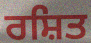
ਰਸ਼ਿਤ